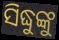
ସିଦ୍ଧୁଙ୍କୁ